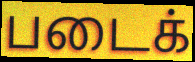
படைக்